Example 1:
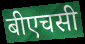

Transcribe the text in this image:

बीएचसी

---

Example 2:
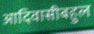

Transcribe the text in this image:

आदिवासीबहुल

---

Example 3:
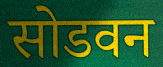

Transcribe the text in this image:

सोडवन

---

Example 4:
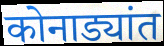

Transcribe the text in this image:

कोनाड्यांत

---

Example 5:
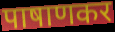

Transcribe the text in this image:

पाषाणकर